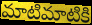
మాటిమాటికి